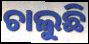
ଚାଲୁଛି